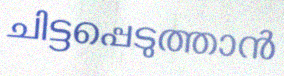
ചിട്ടപ്പെടുത്താൻ